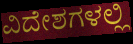
ವಿದೇಶಗಳಲ್ಲಿ